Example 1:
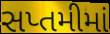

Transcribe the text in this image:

સપ્તમીમાં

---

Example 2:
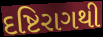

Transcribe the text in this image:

દષ્ટિરાગથી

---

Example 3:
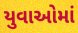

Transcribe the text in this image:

યુવાઓમાં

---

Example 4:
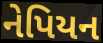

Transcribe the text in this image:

નેપિયન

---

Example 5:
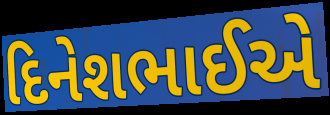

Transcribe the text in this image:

દિનેશભાઈએ